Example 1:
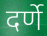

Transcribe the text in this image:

दर्णे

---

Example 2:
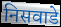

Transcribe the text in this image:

निसवाडे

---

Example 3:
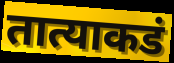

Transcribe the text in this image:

तात्याकडं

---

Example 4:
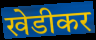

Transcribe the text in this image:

खेडीकर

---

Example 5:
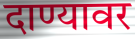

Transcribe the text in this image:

दाण्यावर